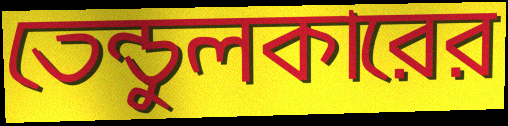
তেন্ডুলকারের